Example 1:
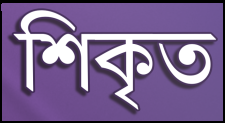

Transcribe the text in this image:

শিকৃত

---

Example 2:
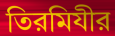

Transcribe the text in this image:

তিরমিযীর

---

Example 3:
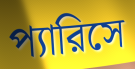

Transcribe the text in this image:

প্যারিসে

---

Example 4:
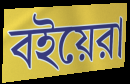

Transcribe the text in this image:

বইয়েরা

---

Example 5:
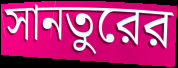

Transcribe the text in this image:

সানতুরের